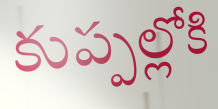
కుప్పల్లోకి